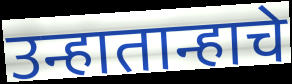
उन्हातान्हाचे